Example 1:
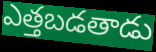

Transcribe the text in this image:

ఎత్తబడతాడు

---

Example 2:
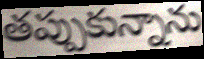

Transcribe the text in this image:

తప్పుకున్నాను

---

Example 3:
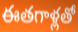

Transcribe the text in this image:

ఈతగాళ్లతో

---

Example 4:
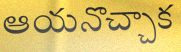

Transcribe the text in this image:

ఆయనొచ్చాక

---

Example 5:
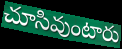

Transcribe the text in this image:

చూసివుంటారు